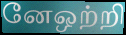
னேஒற்றி